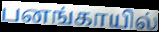
பனங்காயில்